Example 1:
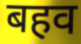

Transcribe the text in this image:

बहव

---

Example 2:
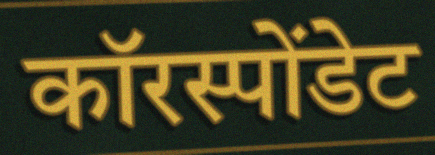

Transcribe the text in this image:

कॉरस्पोंडेट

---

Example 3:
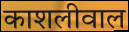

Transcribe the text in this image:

काशलीवाल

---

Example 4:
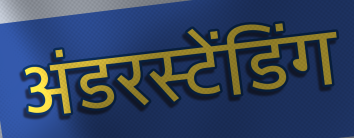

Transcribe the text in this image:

अंडरस्टेंडिंग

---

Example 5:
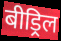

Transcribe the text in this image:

बीड्रिल